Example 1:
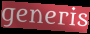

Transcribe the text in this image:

generis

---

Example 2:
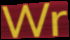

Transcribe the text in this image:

Wr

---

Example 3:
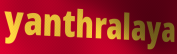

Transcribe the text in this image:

yanthralaya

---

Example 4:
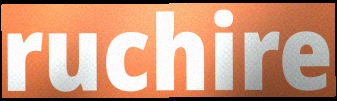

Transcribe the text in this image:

ruchire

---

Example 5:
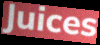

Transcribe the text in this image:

Juices